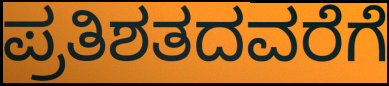
ಪ್ರತಿಶತದವರೆಗೆ